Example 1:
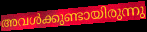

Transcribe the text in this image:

അവൾക്കുണ്ടായിരുന്നു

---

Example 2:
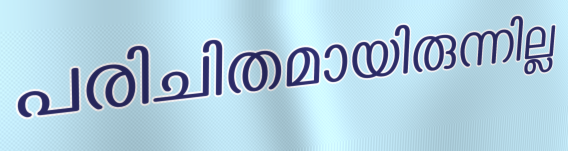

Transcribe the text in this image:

പരിചിതമായിരുന്നില്ല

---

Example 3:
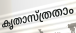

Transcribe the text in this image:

കൃതാസ്ത്രതാം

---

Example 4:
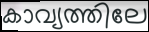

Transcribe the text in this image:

കാവ്യത്തിലേ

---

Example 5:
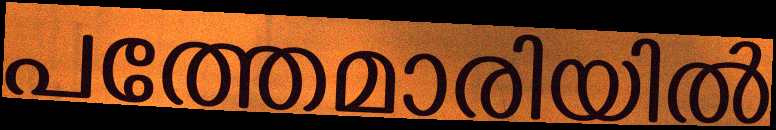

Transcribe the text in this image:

പത്തേമാരിയിൽ